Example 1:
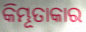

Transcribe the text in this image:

କିମ୍ଭୂତାକାର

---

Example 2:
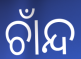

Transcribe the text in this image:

ଚାଁନ୍ଦ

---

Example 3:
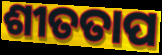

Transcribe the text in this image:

ଶୀତତାପ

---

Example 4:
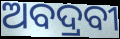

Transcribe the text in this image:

ଅବଦ୍ରବୀ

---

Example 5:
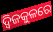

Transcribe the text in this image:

ଦ୍ୱିଜକୁଳରେ